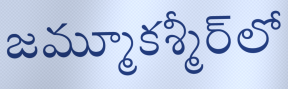
జమ్మూకశ్మీర్‌లో